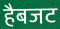
हैबजट